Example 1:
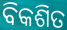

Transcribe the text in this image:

ବିକଶିତ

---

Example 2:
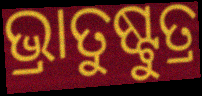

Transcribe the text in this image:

ଭ୍ରାତୁଷ୍ଟୁତ୍ର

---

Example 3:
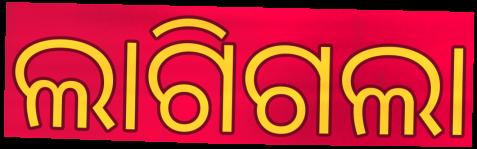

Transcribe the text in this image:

ଲାଗିଗଲା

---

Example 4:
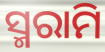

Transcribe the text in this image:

ସ୍ମରାମି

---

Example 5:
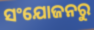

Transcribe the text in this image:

ସଂଯୋଜନରୁ